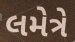
લમેત્રે